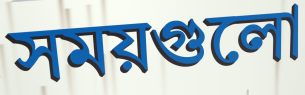
সময়গুলো